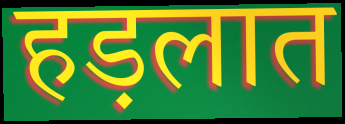
हड़लात